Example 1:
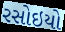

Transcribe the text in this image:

રસોઇયો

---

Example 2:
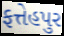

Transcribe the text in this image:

ફત્તેહપુર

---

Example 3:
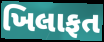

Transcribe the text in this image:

ખિલાફત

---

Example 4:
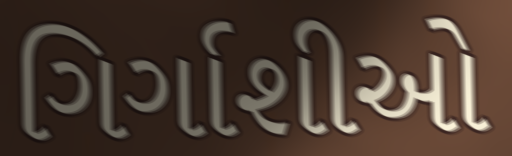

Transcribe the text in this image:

ગિર્ગાશીઓ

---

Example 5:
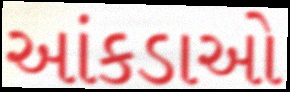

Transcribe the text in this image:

આંકડાઓ